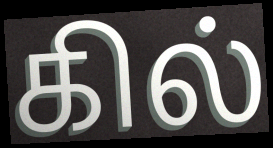
கில்